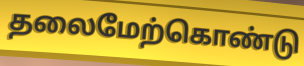
தலைமேற்கொண்டு